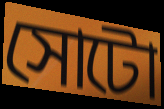
সোটো